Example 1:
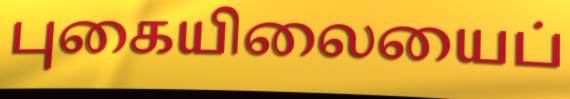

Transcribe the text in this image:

புகையிலையைப்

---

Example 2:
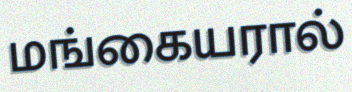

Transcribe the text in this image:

மங்கையரால்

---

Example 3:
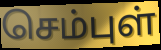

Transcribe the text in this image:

செம்புள்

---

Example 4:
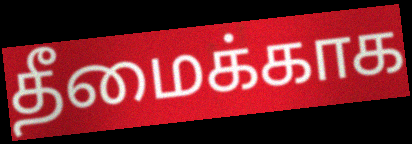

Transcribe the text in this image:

தீமைக்காக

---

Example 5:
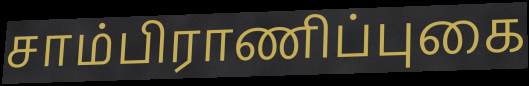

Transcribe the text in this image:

சாம்பிராணிப்புகை